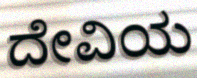
ದೇವಿಯ